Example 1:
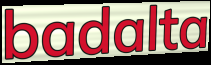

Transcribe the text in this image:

badalta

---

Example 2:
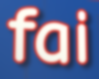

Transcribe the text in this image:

fai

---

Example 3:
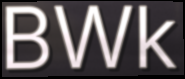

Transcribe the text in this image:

BWk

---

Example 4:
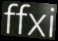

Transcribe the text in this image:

ffxi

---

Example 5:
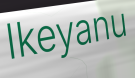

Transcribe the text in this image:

Ikeyanu